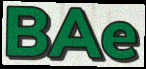
BAe